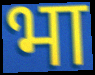
भा